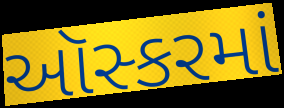
ઑસ્કરમાં